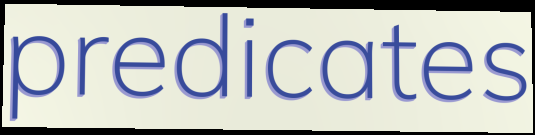
predicates